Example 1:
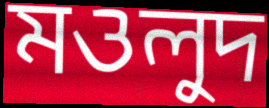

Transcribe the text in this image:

মওলুদ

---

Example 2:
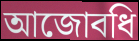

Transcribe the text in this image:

আজোবধি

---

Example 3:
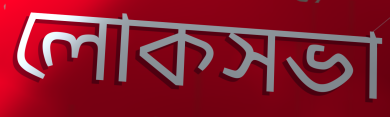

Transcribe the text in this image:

লোকসভা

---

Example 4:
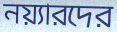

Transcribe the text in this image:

নয়্যারদের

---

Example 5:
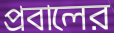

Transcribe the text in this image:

প্রবালের